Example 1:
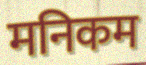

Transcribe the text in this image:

मनिकम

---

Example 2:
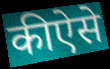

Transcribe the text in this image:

कीऐसे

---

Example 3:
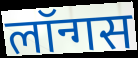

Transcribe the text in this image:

लॉन्गस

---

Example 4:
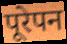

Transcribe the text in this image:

पूरेपन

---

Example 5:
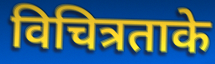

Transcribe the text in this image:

विचित्रताके